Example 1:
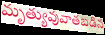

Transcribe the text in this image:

మృత్యువువాతబడిన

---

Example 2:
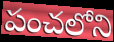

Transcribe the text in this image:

పంచలోని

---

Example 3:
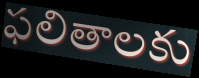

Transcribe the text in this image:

ఫలితాలకు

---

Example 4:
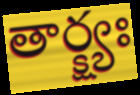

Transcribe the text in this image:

తార్క్ష్యః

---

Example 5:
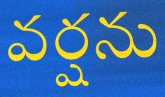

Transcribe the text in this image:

వర్షను